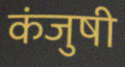
कंजुषी